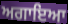
ਅਗਾਇਆ